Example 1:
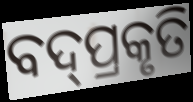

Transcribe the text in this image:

ବଦ୍‌ପ୍ରକୃତି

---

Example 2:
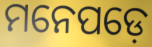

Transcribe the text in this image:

ମନେପଡ଼େ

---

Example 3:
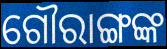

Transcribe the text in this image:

ଗୌରାଙ୍ଗଙ୍କ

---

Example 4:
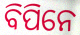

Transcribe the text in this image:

ବିପିନେ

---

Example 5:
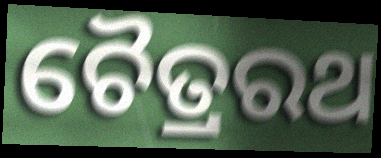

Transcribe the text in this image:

ଚୈତ୍ରରଥ